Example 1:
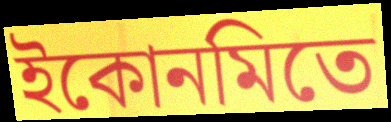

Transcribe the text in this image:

ইকোনমিতে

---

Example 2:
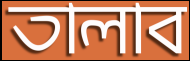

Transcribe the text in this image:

তালাব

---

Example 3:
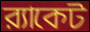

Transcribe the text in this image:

র‍্যাকেট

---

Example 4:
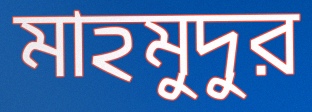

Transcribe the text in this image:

মাহমুদুর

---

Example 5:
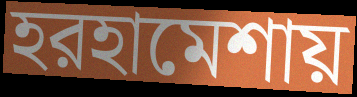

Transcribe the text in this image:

হরহামেশায়